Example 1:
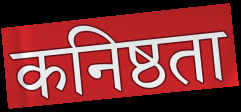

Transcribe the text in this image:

कनिष्ठता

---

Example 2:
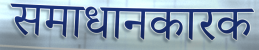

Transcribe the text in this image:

समाधानकारक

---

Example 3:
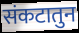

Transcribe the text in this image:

संकटातुन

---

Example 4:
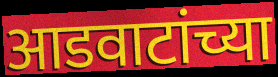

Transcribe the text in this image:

आडवाटांच्या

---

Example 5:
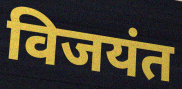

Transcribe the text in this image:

विजयंत